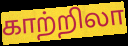
காற்றிலா